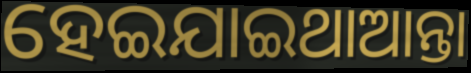
ହେଇଯାଇଥାଆନ୍ତା